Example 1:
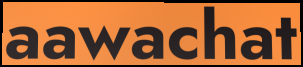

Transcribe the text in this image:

aawachat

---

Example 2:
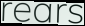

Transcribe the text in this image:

rears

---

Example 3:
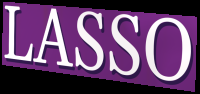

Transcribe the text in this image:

LASSO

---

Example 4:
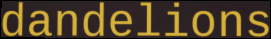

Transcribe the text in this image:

dandelions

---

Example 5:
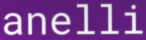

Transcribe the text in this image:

anelli